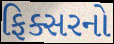
ફિક્સરનો